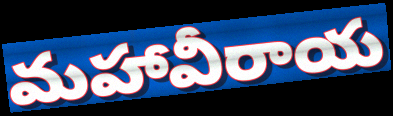
మహావీరాయ